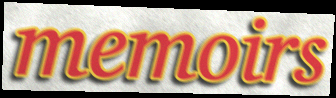
memoirs